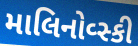
માલિનોવ્સ્કી